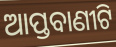
ଆପ୍ତବାଣୀଟି